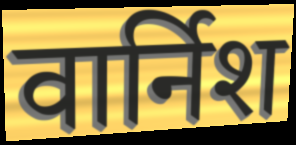
वार्निश